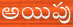
అయిపు